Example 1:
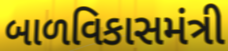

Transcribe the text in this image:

બાળવિકાસમંત્રી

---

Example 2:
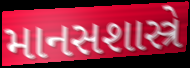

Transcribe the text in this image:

માનસશાસ્ત્રે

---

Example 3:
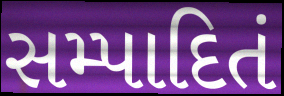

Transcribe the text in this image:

સમ્પાદિતં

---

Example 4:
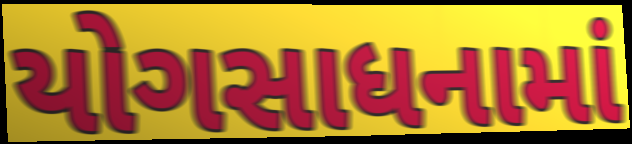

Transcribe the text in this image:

યોગસાધનામાં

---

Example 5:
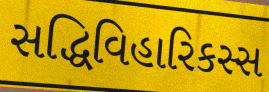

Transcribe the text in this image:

સદ્ધિવિહારિકસ્સ